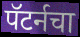
पॅटर्नचा